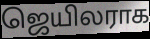
ஜெயிலராக